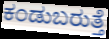
ಕಂಡುಬರುತ್ತೆ